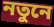
নতুনে